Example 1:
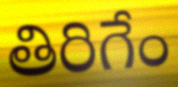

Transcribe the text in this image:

తిరిగేం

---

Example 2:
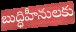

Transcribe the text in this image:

బుద్ధిహీనులకు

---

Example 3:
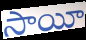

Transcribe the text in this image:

సాయీ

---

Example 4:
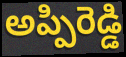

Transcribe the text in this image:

అప్పిరెడ్డి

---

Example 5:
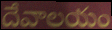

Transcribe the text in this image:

దేవాలయం